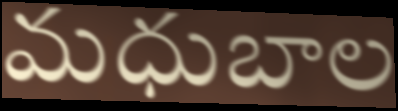
మధుబాల